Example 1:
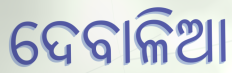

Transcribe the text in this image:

ଦେବାଳିଆ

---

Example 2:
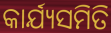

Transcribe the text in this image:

କାର୍ଯ୍ୟସମିତି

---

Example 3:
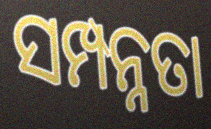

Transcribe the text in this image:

ସମ୍ପନ୍ନତା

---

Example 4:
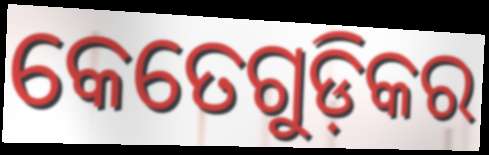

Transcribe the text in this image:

କେତେଗୁଡ଼ିକର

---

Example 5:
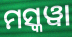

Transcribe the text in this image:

ମସ୍କୱା